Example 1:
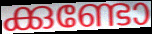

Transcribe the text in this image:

ക്കുണ്ടോ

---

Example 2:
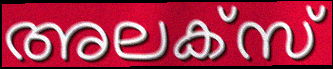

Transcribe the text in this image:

അലക്സ്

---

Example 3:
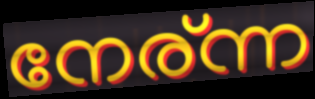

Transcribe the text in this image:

നേര്ന്ന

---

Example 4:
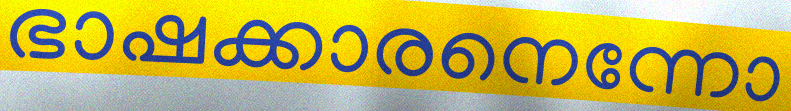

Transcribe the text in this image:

ഭാഷക്കാരനെന്നോ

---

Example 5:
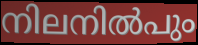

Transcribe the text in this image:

നിലനിൽപും